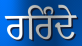
ਰਰਿੰਦੇ